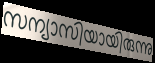
സന്യാസിയായിരുന്നു